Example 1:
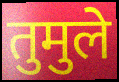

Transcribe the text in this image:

तुमुले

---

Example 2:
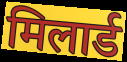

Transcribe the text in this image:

मिलार्ड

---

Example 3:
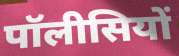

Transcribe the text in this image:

पॉलीसियों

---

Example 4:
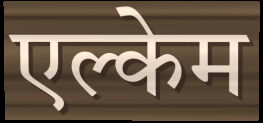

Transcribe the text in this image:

एल्केम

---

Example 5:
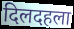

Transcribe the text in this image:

दिलदहला